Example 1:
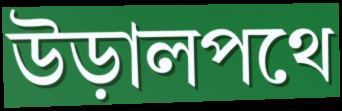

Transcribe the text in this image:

উড়ালপথে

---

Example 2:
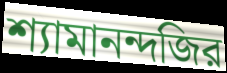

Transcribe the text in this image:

শ্যামানন্দজির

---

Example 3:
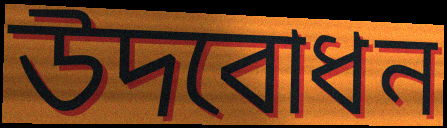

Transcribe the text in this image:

উদবোধন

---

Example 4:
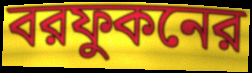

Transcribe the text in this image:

বরফুকনের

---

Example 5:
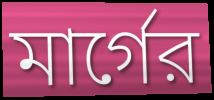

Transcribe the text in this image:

মার্গের